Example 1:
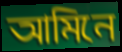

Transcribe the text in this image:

আমিনে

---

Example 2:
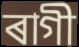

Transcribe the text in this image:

ৰাগী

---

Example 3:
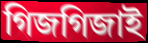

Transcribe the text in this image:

গিজগিজাই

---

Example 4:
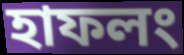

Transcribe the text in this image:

হাফলং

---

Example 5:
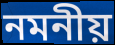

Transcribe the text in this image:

নমনীয়